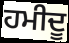
ਹਮੀਦੂ